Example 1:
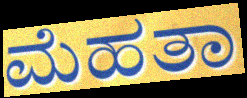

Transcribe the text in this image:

ಮೆಹತಾ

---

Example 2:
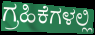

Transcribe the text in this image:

ಗ್ರಹಿಕೆಗಳಲ್ಲಿ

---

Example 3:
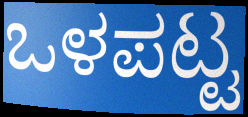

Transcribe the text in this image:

ಒಳಪಟ್ಟ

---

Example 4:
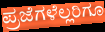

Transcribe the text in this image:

ಪ್ರಜೆಗಳೆಲ್ಲರಿಗೂ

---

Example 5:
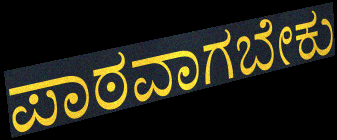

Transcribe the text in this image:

ಪಾಠವಾಗಬೇಕು